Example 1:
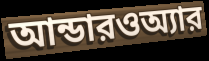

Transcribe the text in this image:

আন্ডারওঅ্যার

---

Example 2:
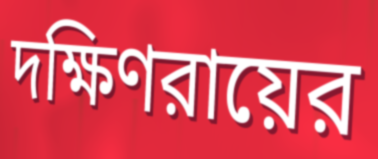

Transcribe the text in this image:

দক্ষিণরায়ের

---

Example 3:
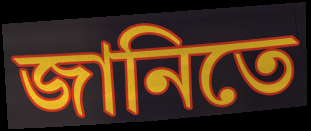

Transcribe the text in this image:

জানিতে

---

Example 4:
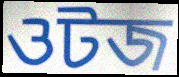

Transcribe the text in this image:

ওটজ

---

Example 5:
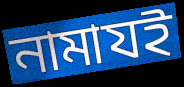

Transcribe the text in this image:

নামাযই